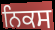
ਨਿਕਸ